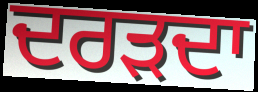
ਦਰੜਦਾ